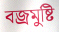
বজ্রমুষ্টি